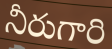
నీరుగారి